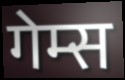
गेम्स